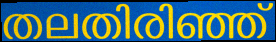
തലതിരിഞ്ഞ്